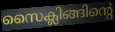
സൈക്ലിങ്ങിന്റെ